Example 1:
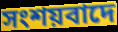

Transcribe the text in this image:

সংশয়বাদে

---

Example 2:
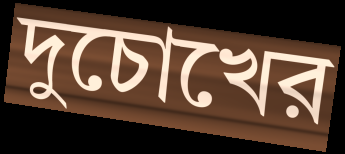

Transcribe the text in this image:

দুচোখের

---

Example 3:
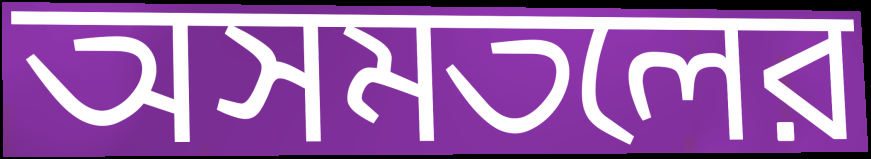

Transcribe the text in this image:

অসমতলের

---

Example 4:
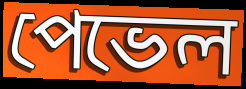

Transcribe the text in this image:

পেভেল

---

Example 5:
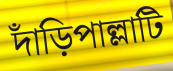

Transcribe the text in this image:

দাঁড়িপাল্লাটি